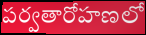
పర్వతారోహణలో